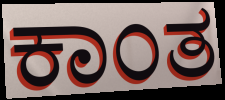
ಕಾಂತ